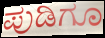
ಪುಡಿಗೂ